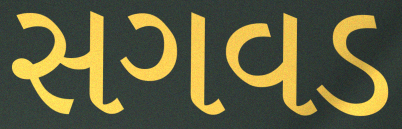
સગવડ